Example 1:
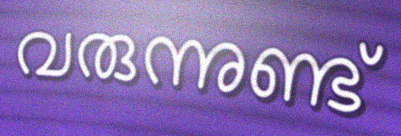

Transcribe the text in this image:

വരുന്നുണ്ട്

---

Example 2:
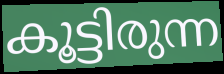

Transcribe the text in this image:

കൂട്ടിരുന്ന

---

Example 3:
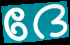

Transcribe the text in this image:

ദേ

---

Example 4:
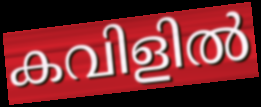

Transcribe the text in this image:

കവിളിൽ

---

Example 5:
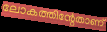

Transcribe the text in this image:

ലോകത്തിന്റേതാണ്